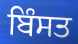
ਬਿੰਸਤ